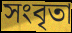
সংবৃতা